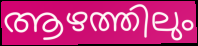
ആഴത്തിലും